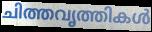
ചിത്തവൃത്തികൾ